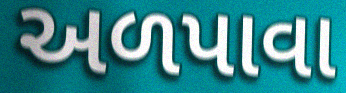
અળપાવા